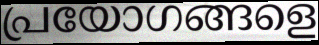
പ്രയോഗങ്ങളെ